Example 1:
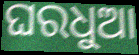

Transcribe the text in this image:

ଘରଧୁଆ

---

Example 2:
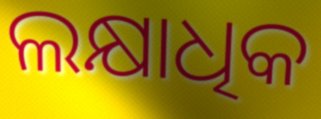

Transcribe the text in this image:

ଲକ୍ଷାଧିକ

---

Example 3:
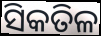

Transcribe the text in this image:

ସିକତିଳ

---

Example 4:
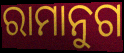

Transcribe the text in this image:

ରାମାନୁଗ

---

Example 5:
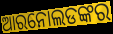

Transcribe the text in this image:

ଆରନୋଲଡଙ୍କର